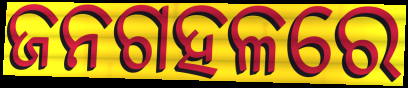
ଜନଗହଳରେ